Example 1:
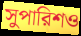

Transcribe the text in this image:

সুপারিশও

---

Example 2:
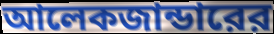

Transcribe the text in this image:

আলেকজান্ডারের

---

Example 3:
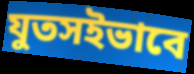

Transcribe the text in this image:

যুতসইভাবে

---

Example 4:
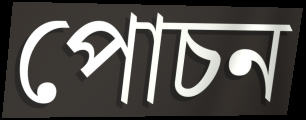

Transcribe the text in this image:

পোচন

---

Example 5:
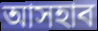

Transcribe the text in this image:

আসহাব